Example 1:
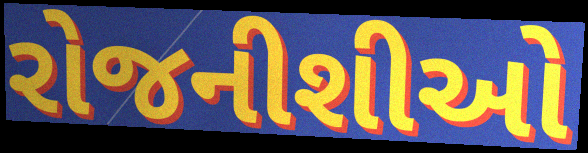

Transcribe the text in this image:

રોજનીશીઓ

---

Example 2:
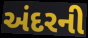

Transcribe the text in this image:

અંદરની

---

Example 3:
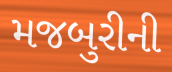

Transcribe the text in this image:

મજબુરીની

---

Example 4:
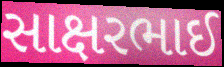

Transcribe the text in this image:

સાક્ષરભાઈ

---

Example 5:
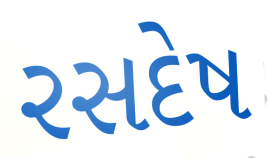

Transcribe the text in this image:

રસદેષ